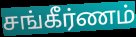
சங்கீர்ணம்